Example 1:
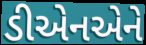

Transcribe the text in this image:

ડીએનએને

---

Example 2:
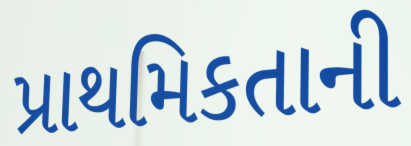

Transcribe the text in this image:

પ્રાથમિકતાની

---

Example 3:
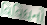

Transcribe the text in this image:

વિવિધનો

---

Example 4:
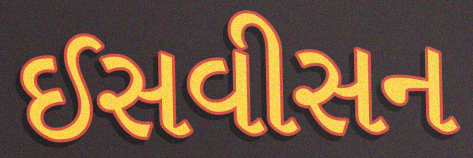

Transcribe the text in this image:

ઈસવીસન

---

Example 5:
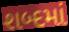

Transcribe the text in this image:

શબ્દમાં